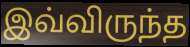
இவ்விருந்த